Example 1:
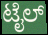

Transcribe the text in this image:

ಟೈಲ್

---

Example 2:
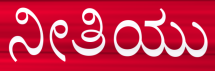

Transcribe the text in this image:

ನೀತಿಯು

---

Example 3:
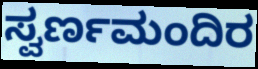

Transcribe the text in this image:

ಸ್ವರ್ಣಮಂದಿರ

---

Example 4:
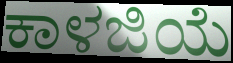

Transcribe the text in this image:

ಕಾಳಜಿಯೆ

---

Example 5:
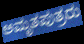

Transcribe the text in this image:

ಅಮೃತಪುತ್ರರು